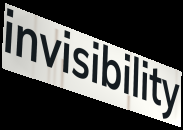
invisibility